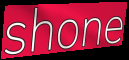
shone